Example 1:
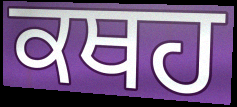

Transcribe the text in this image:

ਕਥਹ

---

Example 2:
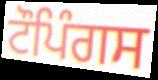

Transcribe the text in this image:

ਟੌਪਿੰਗਸ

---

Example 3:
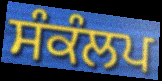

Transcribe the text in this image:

ਸੰਕੰਲਪ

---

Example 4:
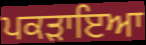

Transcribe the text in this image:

ਪਕੜਾਇਆ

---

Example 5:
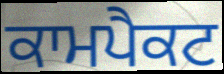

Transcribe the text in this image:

ਕਾਮਪੈਕਟ